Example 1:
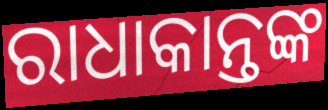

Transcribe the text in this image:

ରାଧାକାନ୍ତଙ୍କ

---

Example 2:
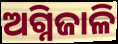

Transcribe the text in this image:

ଅଗ୍ନିଜାଳି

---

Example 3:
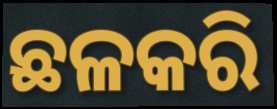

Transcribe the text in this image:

ଛଳକରି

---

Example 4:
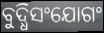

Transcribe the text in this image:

ବୁଦ୍ଧିସଂଯୋଗଂ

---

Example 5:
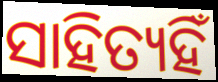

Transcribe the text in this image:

ସାହିତ୍ୟହିଁ